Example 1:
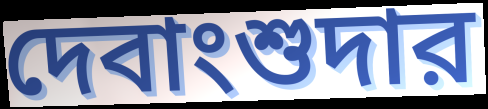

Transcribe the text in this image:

দেবাংশুদার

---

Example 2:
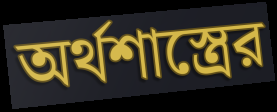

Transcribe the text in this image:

অর্থশাস্ত্রের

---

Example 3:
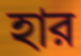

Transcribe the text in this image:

হার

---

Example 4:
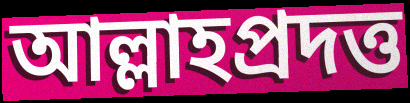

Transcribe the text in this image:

আল্লাহপ্রদত্ত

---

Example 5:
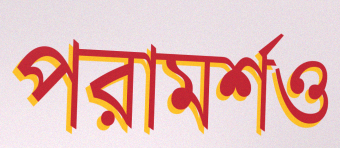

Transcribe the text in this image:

পরামর্শও